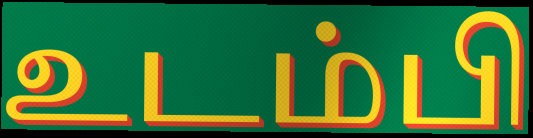
உடம்பி